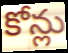
కోన్లు